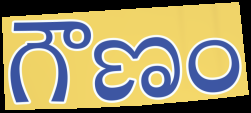
గౌణం